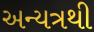
અન્યત્રથી